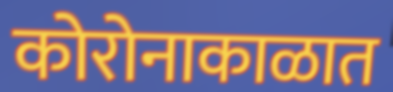
कोरोनाकाळात